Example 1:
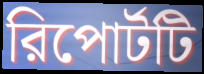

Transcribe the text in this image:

রিপোর্টটি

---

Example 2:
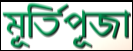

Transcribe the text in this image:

মূর্তিপূজা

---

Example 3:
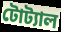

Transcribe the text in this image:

টোট্যাল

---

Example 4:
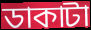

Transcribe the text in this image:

ডাকাটা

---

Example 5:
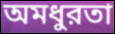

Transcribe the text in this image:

অমধুরতা